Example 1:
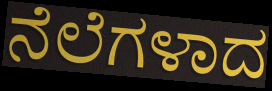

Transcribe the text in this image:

ನೆಲೆಗಳಾದ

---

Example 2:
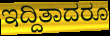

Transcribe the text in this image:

ಇದ್ದಿತಾದರೂ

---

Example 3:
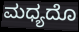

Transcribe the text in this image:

ಮಧ್ಯದೊ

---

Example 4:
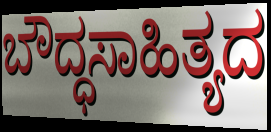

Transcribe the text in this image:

ಬೌದ್ಧಸಾಹಿತ್ಯದ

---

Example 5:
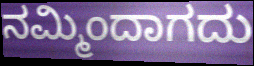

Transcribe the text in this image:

ನಮ್ಮಿಂದಾಗದು